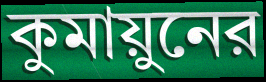
কুমায়ুনের